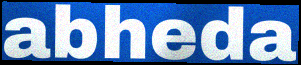
abheda